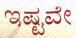
ಇಷ್ಟವೇ